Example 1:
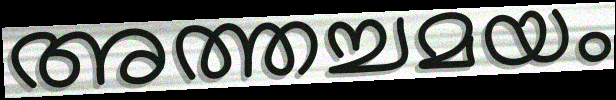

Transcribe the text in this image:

അത്തച്ചമയം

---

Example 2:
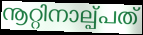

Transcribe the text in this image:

നൂറ്റിനാല്പ്പത്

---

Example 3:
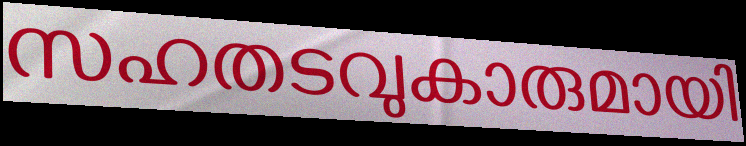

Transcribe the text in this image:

സഹതടവുകാരുമായി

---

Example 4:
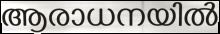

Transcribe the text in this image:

ആരാധനയിൽ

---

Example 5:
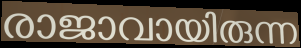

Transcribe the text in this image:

രാജാവായിരുന്ന